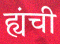
ह्यंची